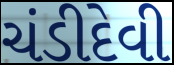
ચંડીદેવી